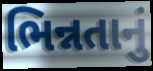
ભિન્નતાનું